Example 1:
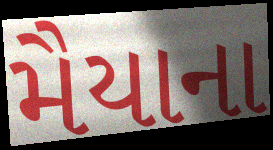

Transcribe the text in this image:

મૈયાના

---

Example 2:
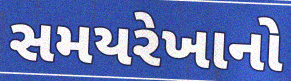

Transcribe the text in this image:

સમયરેખાનો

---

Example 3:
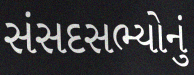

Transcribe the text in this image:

સંસદસભ્યોનું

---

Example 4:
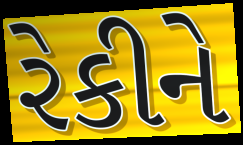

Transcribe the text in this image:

રેકીને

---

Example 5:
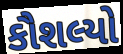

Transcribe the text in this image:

કૌશલ્યો